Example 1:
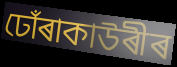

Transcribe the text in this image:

ঢোঁৰাকাউৰীৰ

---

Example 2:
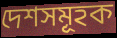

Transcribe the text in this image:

দেশসমূহক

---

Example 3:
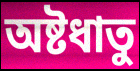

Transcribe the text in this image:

অষ্টধাতু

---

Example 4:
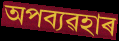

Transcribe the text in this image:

অপব্যৱহাৰ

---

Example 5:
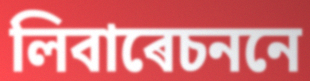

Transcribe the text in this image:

লিবাৰেচননে